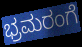
ಭ್ರಮರಂಗೆ